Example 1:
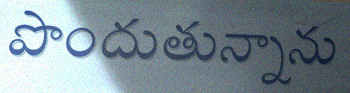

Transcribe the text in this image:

పొందుతున్నాను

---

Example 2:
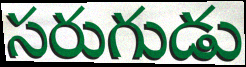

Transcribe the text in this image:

సరుగుడు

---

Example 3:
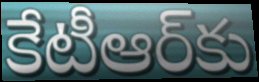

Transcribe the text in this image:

కేటీఆర్‌కు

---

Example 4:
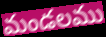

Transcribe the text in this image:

మండలము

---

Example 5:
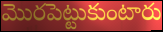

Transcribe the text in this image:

మొరపెట్టుకుంటారు